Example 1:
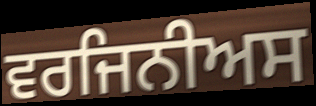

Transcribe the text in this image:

ਵਰਜਿਨੀਅਸ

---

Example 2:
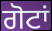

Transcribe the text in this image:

ਗੋਟਾਂ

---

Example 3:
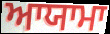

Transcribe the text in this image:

ਆਯਾਮਾ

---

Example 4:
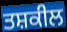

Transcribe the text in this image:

ਤਸ਼ਕੀਲ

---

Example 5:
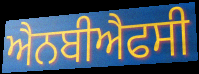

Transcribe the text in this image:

ਐਨਬੀਐਫਸੀ